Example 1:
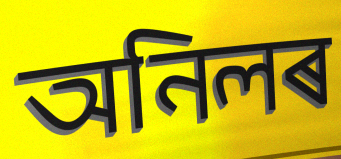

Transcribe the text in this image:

অনিলৰ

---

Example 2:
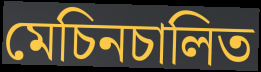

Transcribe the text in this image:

মেচিনচালিত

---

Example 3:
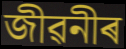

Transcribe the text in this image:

জীৱনীৰ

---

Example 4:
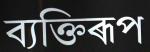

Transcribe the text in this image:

ব্যক্তিৰূপ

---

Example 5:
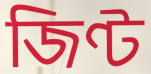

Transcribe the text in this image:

জিণ্ট